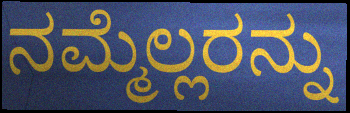
ನಮ್ಮೆಲ್ಲರನ್ನು